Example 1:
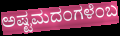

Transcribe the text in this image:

ಅಷ್ಟಮದಂಗಳೆಂಬ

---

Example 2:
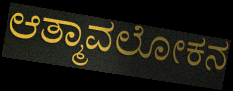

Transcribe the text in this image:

ಆತ್ಮಾವಲೋಕನ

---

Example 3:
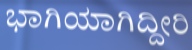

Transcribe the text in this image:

ಭಾಗಿಯಾಗಿದ್ದೀರಿ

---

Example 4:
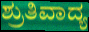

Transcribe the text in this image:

ಶ್ರುತಿವಾದ್ಯ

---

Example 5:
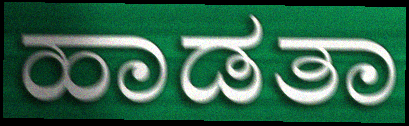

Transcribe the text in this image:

ಹಾಡತಾ